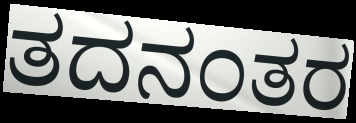
ತದನಂತರ